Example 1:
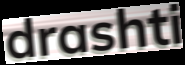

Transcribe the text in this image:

drashti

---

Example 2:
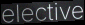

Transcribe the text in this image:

elective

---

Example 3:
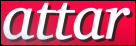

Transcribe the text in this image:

attar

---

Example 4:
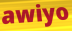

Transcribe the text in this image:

awiyo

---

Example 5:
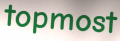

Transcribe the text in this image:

topmost